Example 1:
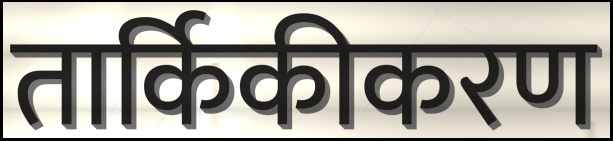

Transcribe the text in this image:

तार्किकीकरण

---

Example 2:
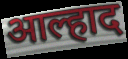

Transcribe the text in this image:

आल्हाद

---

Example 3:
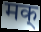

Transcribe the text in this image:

मक्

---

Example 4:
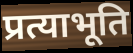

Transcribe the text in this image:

प्रत्याभूति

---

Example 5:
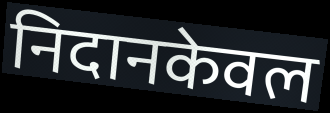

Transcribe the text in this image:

निदानकेवल